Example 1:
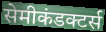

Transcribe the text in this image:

सेमीकंडक्टर्स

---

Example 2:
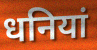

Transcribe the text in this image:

धनियां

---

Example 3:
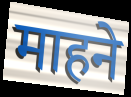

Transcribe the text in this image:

माहने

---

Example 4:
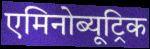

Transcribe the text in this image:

एमिनोब्यूट्रिक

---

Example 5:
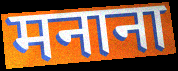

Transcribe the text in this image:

मनाना